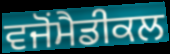
ਵਜੋਂਮੈਡੀਕਲ